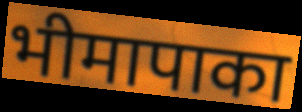
भीमापाका